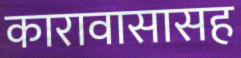
कारावासासह